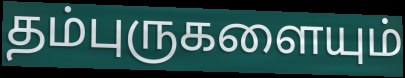
தம்புருகளையும்